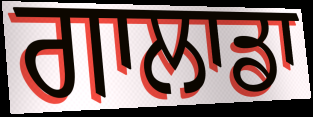
ਗਾਲਾਡਾ